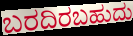
ಬರದಿರಬಹುದು